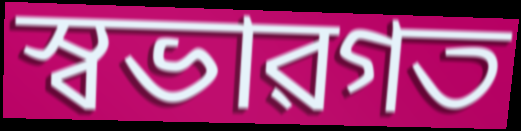
স্বভাৱগত